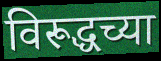
विरूद्धच्या